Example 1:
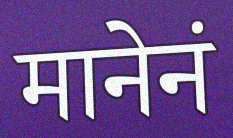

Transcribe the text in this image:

मानेनं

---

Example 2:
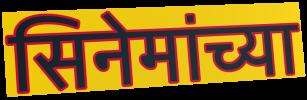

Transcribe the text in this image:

सिनेमांच्या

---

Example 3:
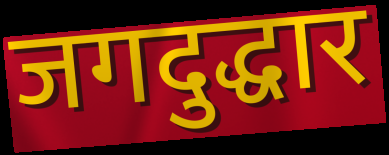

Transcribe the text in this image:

जगदुद्धार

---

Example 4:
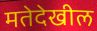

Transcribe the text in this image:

मतेदेखील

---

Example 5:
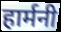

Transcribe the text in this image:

हार्मनी